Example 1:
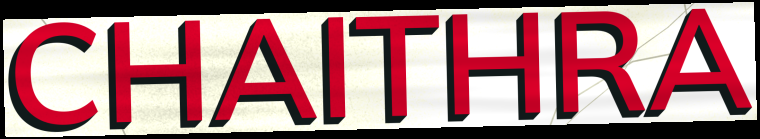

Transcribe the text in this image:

CHAITHRA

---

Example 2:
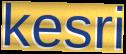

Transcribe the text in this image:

kesri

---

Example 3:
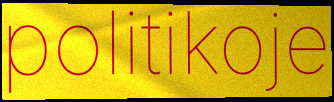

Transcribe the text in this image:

politikoje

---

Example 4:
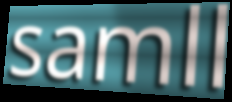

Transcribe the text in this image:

samll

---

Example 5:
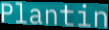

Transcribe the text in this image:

Plantin